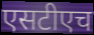
एसटीएच